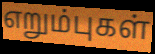
எறும்புகள்